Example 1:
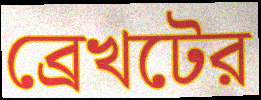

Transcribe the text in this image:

ব্রেখটের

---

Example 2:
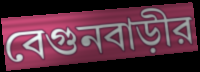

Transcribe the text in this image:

বেগুনবাড়ীর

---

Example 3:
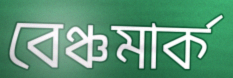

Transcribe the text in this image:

বেঞ্চমার্ক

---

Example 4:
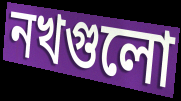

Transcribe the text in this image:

নখগুলো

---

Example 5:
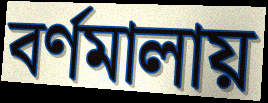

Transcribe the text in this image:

বর্ণমালায়